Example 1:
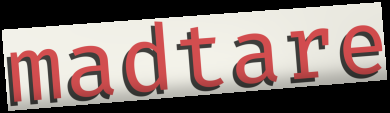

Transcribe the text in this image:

madtare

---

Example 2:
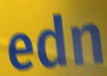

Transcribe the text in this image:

edn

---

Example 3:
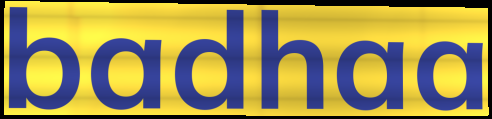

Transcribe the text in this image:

badhaa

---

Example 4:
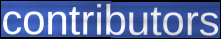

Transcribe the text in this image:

contributors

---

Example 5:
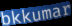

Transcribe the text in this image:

bkkumar